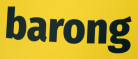
barong